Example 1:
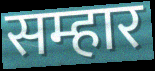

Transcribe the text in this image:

सम्हार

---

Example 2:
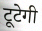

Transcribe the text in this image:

टूटेगी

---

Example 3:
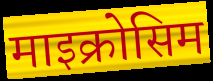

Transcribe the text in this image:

माइक्रोसिम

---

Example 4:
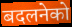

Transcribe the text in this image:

बदलनेको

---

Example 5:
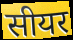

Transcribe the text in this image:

सीयर